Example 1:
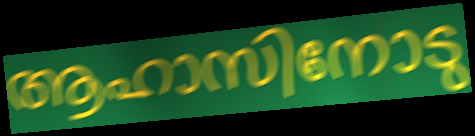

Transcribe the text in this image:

ആഹാസിനോടു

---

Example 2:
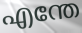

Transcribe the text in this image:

എന്തേ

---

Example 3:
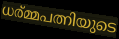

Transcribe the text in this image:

ധര്മ്മപത്നിയുടെ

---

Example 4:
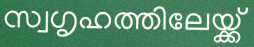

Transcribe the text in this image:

സ്വഗൃഹത്തിലേയ്ക്ക്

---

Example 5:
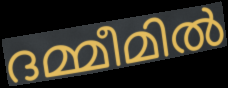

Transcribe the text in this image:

ദമ്മീമിൽ